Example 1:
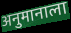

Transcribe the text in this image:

अनुमानाला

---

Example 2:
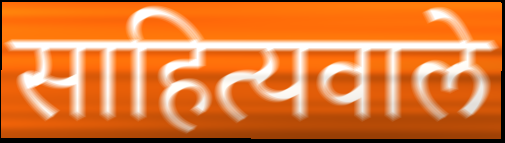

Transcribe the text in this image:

साहित्यवाले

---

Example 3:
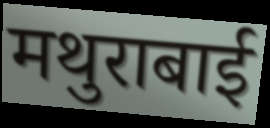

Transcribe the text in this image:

मथुराबाई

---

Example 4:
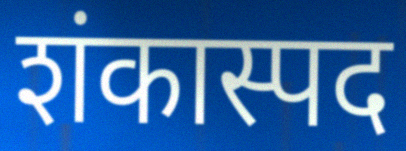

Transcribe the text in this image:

शंकास्पद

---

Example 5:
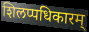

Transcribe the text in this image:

शिलप्पधिकारम्